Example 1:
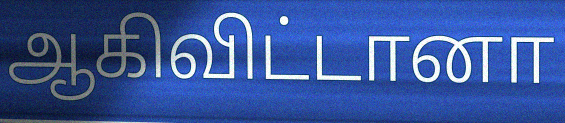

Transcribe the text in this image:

ஆகிவிட்டானா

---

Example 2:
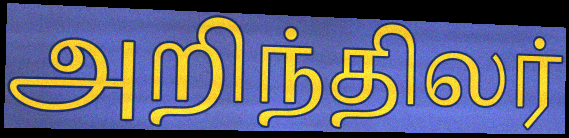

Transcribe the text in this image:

அறிந்திலர்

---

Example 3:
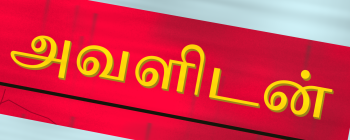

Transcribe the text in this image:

அவளிடன்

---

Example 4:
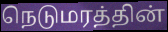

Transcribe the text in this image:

நெடுமரத்தின்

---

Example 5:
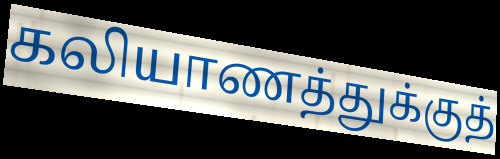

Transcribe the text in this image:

கலியாணத்துக்குத்